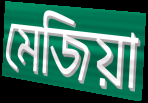
মেজিয়া